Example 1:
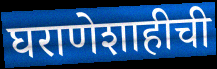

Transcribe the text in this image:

घराणेशाहीची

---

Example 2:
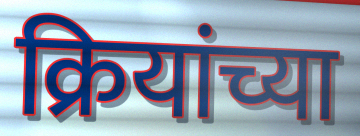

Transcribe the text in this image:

क्रियांच्या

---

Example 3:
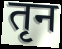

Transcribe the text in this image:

तृन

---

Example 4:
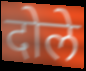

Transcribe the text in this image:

दोले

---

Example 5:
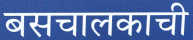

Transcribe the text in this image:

बसचालकाची